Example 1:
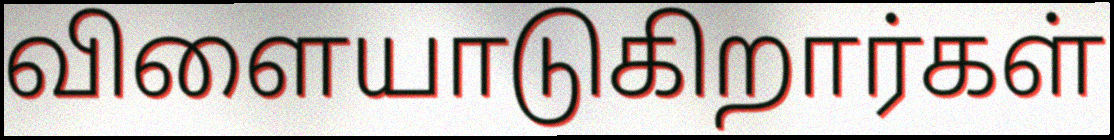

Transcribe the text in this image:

விளையாடுகிறார்கள்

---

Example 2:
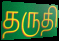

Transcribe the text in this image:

தருதி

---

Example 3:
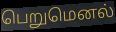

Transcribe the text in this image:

பெறுமெனல்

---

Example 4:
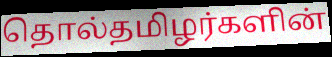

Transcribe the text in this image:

தொல்தமிழர்களின்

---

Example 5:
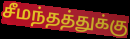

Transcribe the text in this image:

சீமந்தத்துக்கு